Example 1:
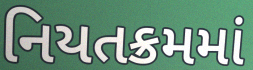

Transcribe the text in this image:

નિયતક્રમમાં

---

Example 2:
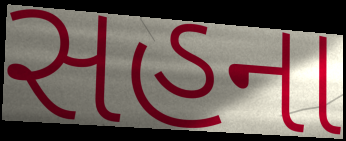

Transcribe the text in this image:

સહના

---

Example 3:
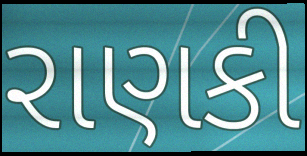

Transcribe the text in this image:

રાણકી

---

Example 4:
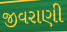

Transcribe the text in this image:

જીવરાણી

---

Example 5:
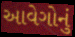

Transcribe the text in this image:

આવેગોનું